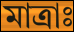
মাত্রাঃ